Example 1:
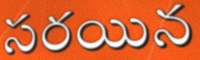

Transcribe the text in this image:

సరయిన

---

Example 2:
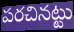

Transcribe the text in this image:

పరచినట్టు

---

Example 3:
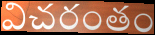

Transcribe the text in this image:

విచరంతం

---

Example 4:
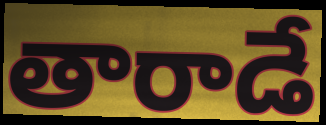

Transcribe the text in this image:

తారాడే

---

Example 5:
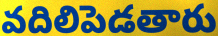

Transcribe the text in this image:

వదిలిపెడతారు